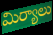
మిర్యాలు